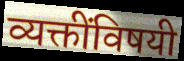
व्यक्तींविषयी